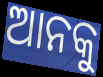
ଆନକୁ